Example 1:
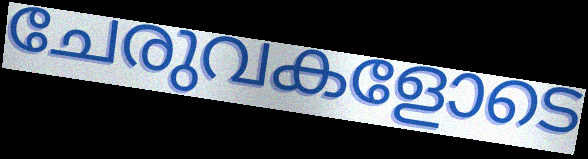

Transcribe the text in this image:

ചേരുവകളോടെ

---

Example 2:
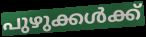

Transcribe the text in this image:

പുഴുക്കൾക്ക്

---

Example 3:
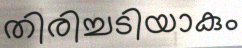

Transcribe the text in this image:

തിരിച്ചടിയാകും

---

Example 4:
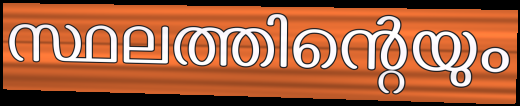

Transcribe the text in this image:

സ്ഥലത്തിന്റെയും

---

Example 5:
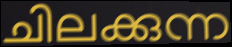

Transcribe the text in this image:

ചിലക്കുന്ന